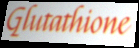
Glutathione